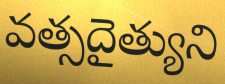
వత్సదైత్యుని